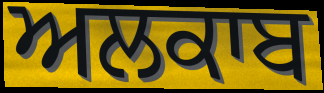
ਅਲਕਾਬ